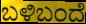
ಬಳಿಬಂದೆ